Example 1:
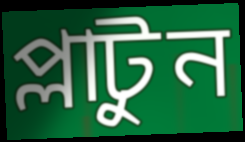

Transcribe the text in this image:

প্লাটুন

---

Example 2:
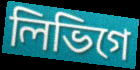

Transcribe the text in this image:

লিভিগে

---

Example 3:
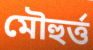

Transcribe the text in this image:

মৌহুৰ্ত্ত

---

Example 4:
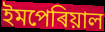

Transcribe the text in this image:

ইমপেৰিয়াল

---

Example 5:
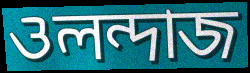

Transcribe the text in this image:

ওলন্দাজ